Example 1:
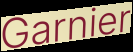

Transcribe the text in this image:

Garnier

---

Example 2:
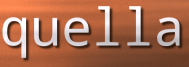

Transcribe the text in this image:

quella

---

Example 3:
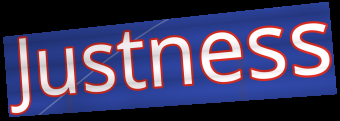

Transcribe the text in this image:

Justness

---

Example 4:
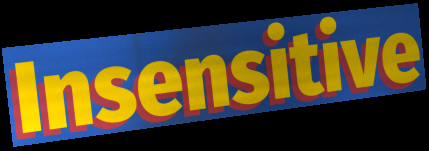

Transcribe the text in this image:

Insensitive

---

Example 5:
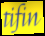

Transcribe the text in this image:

tifin